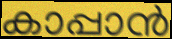
കാപ്പാൻ